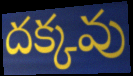
దక్కవు